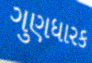
ગુણધારક